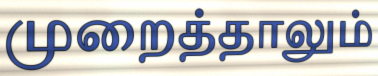
முறைத்தாலும்